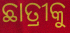
ଛାତ୍ରୀକୁ